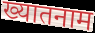
ख्यातनाम